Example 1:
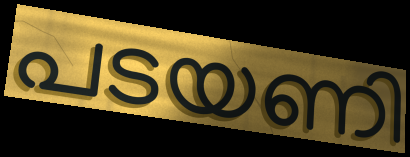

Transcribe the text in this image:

പടയണി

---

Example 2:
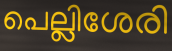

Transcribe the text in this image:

പെല്ലിശേരി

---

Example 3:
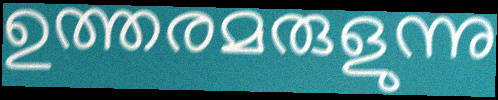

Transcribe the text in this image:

ഉത്തരമരുളുന്നു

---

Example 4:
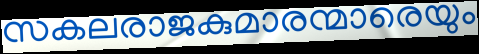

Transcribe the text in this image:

സകലരാജകുമാരന്മാരെയും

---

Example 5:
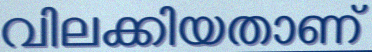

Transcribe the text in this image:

വിലക്കിയതാണ്